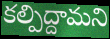
కల్పిద్దామని